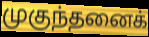
முகுந்தனைக்